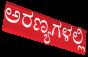
ಅರಣ್ಯಗಳಲ್ಲಿ